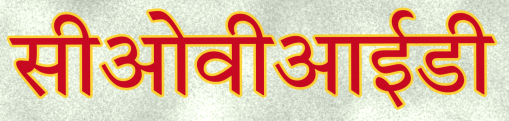
सीओवीआईडी